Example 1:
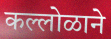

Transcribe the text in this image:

कल्लोळाने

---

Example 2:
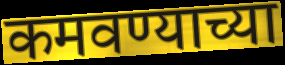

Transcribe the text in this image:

कमवण्याच्या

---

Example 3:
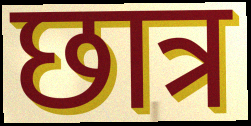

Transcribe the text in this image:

छात्र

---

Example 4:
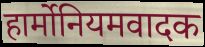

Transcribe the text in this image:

हार्मोनियमवादक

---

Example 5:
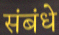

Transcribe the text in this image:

संबंधे